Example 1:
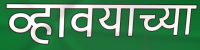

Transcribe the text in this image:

व्हावयाच्या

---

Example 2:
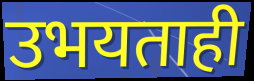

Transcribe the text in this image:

उभयताही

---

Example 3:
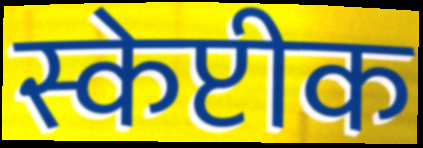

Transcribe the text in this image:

स्केप्टीक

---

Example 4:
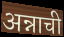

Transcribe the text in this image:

अन्नाची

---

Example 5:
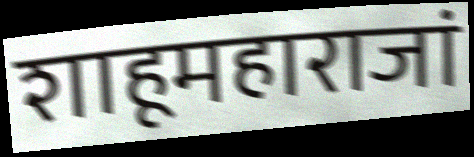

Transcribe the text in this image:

शाहूमहाराजां